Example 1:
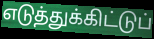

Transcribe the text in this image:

எடுத்துக்கிட்டுப்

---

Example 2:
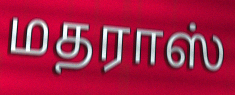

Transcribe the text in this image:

மதராஸ்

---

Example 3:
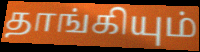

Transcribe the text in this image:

தாங்கியும்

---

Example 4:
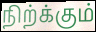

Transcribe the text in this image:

நிற்க்கும்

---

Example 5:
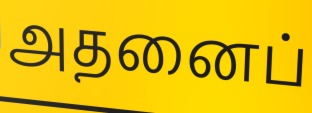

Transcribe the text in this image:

அதனைப்